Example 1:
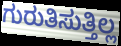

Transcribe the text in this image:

ಗುರುತಿಸುತ್ತಿಲ್ಲ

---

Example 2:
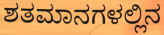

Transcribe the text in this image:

ಶತಮಾನಗಳಲ್ಲಿನ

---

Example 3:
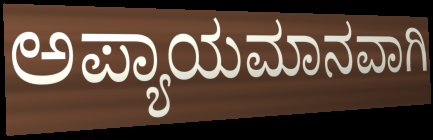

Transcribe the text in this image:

ಅಪ್ಯಾಯಮಾನವಾಗಿ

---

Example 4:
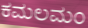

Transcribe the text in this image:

ಕಮಲಮಂ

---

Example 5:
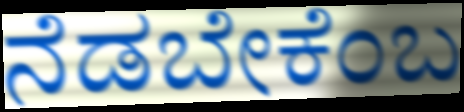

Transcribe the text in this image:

ನೆಡಬೇಕೆಂಬ